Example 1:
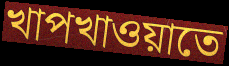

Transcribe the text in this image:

খাপখাওয়াতে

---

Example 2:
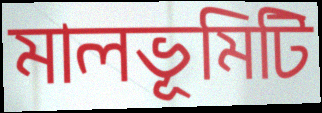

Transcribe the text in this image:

মালভূমিটি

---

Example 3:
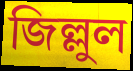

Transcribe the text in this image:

জিল্লুল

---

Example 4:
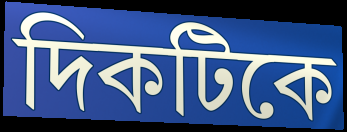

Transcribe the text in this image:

দিকটিকে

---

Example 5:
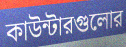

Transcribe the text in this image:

কাউন্টারগুলোর